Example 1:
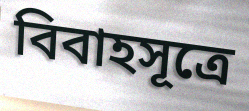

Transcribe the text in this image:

বিবাহসূত্রে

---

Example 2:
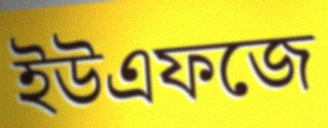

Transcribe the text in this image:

ইউএফজে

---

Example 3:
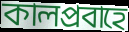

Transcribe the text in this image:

কালপ্রবাহে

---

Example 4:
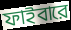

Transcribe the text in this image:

ফাইবারে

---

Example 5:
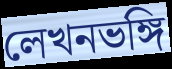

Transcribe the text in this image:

লেখনভঙ্গি